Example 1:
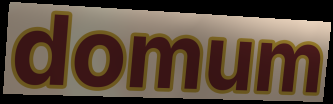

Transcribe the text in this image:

domum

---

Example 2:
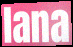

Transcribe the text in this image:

lana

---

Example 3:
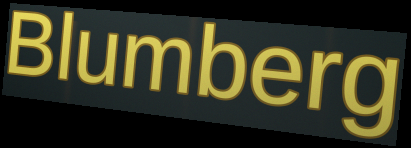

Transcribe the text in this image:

Blumberg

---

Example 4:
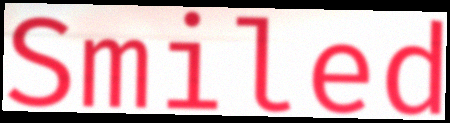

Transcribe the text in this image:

Smiled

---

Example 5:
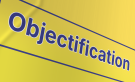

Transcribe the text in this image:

Objectification